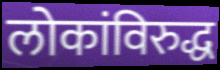
लोकांविरुद्ध